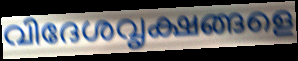
വിദേശവൃക്ഷങ്ങളെ